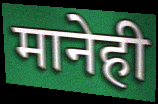
मानेही